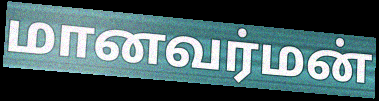
மானவர்மன்